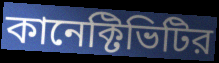
কানেক্টিভিটির